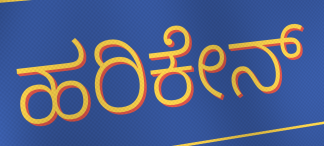
ಹರಿಕೇನ್